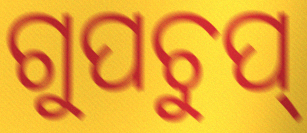
ଗୁପଚୁପ୍